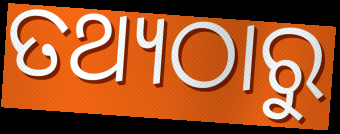
ତଥ୍ୟଠାରୁ